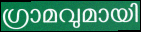
ഗ്രാമവുമായി